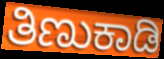
ತಿಣುಕಾಡಿ